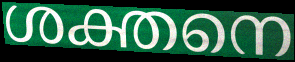
ശക്തനെ